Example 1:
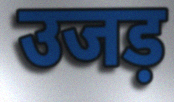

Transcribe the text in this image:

उजड़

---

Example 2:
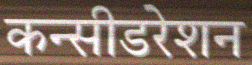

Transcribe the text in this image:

कन्सीडरेशन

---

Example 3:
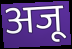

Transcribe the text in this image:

अजू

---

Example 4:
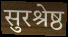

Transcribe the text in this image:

सुरश्रेष्ठ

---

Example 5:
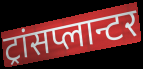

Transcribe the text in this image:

ट्रांसप्लान्टर